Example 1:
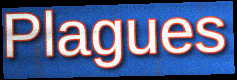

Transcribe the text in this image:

Plagues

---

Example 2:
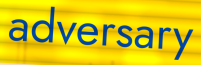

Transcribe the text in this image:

adversary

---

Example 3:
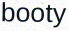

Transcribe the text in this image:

booty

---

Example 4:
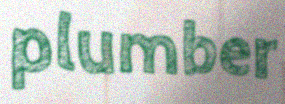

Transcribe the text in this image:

plumber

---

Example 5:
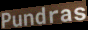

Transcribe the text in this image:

Pundras